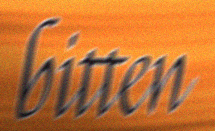
bitten